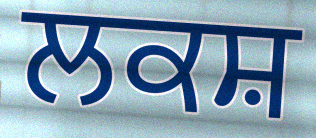
ਲਕਸ਼